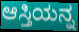
ಆಸ್ತಿಯನ್ನ